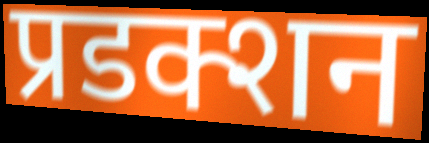
प्रडक्शन